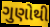
ગુણોથી